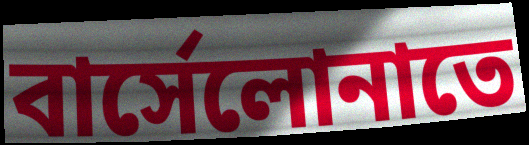
বার্সেলোনাতে